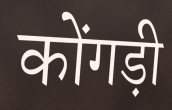
कोंगड़ी